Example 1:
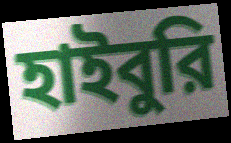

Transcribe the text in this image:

হাইবুরি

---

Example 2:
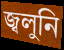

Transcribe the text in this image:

জ্বলুনি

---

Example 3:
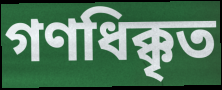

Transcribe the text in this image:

গণধিক্কৃত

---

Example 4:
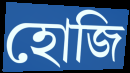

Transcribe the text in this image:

হোজি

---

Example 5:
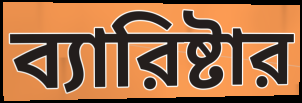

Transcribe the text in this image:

ব্যারিষ্টার